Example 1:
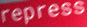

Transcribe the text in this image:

repress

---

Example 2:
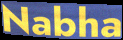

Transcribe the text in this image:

Nabha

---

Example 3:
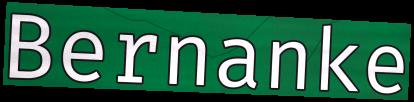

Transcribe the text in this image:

Bernanke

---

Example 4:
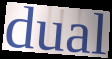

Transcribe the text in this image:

dual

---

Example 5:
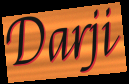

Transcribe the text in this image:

Darji